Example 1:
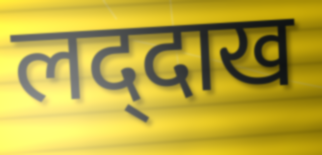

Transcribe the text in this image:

लद्‌दाख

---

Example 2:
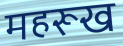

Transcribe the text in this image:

महरूख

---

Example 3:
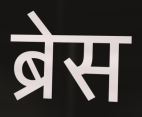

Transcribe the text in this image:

ब्रेस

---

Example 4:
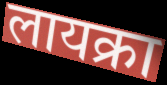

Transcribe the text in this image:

लायक्रा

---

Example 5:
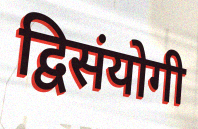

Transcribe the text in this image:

द्विसंयोगी